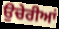
ਉਚੇਰੀਆਂ